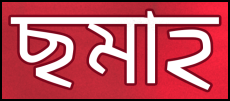
ছমাহ